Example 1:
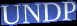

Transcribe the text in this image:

UNDP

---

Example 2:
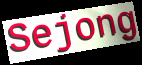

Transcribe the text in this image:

Sejong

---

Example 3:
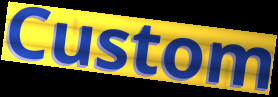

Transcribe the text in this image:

Custom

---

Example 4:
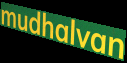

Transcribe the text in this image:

mudhalvan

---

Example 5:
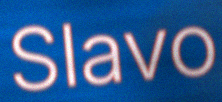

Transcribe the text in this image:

Slavo